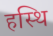
हस्थि